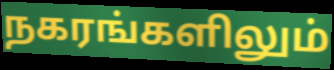
நகரங்களிலும்